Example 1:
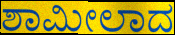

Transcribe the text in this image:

ಶಾಮೀಲಾದ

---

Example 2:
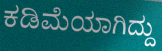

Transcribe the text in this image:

ಕಡಿಮೆಯಾಗಿದ್ದು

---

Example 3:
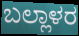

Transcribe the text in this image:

ಬಲ್ಲಾಳರ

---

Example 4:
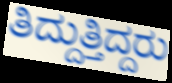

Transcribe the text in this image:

ತಿದ್ದುತ್ತಿದ್ದರು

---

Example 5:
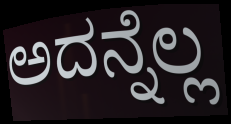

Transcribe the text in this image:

ಅದನ್ನೆಲ್ಲ